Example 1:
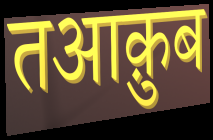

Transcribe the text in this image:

तआक़ुब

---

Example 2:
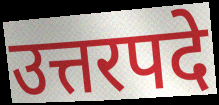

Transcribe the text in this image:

उत्तरपदे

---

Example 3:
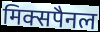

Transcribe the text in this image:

मिक्सपैनल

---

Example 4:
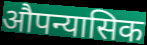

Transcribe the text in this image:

औपन्यासिक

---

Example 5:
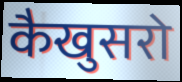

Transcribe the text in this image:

कैखुसरो